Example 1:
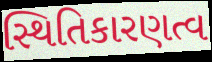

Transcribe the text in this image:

સ્થિતિકારણત્વ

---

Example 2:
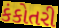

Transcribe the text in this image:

કંકોતરી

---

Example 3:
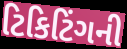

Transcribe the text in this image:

ટિકિટિંગની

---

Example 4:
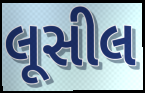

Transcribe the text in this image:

લૂસીલ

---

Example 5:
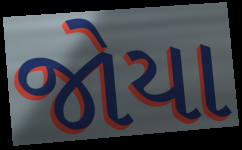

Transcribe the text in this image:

જોયા